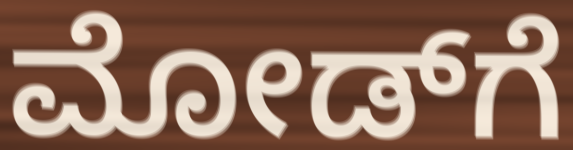
ಮೋಡ್‌ಗೆ